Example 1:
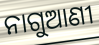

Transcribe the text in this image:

ନାଗୁଆଣୀ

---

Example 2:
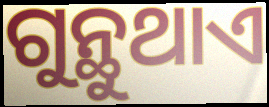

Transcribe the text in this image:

ଗୁନ୍ଥୁଥାଏ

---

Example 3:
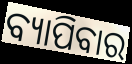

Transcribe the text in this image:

ବ୍ୟାପିବାର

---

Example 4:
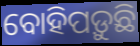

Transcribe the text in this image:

ବୋହିପଡ଼ୁଛି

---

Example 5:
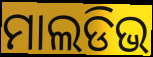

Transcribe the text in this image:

ମାଲଡିଭ